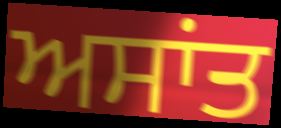
ਅਸਾਂਤ